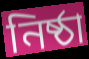
নিষ্ঠা